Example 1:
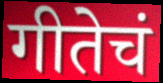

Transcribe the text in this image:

गीतेचं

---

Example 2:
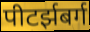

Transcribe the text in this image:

पीटर्झबर्ग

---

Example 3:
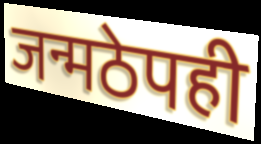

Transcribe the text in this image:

जन्मठेपही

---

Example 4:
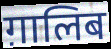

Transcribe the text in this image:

ग़ालिब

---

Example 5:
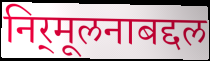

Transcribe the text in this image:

निर्मूलनाबद्दल